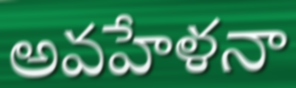
అవహేళనా